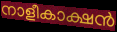
നാളീകാക്ഷൻ